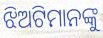
ଝିଅଟିମାନଙ୍କୁ